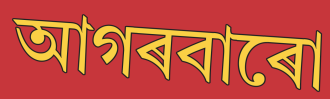
আগৰবাৰো